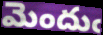
మెందుఁ